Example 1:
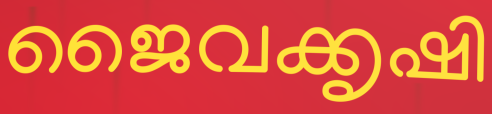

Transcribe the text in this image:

ജൈവക്കൃഷി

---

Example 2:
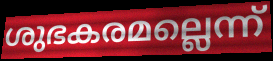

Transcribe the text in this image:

ശുഭകരമല്ലെന്ന്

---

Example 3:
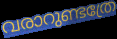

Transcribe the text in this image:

വരാറുണ്ടത്രേ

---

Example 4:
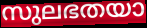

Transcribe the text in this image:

സുലഭതയാ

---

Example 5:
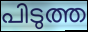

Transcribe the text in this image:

പിടുത്ത